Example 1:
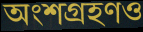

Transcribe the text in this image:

অংশগ্রহণও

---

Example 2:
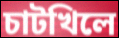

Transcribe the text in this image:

চাটখিলে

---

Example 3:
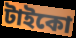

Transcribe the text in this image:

টাইকো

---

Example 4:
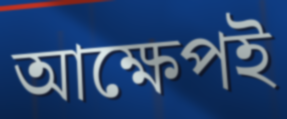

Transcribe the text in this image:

আক্ষেপই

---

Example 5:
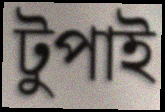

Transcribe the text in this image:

টুপাই